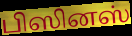
பிஸினஸ்